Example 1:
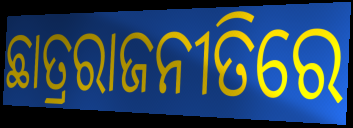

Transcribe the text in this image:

ଛାତ୍ରରାଜନୀତିରେ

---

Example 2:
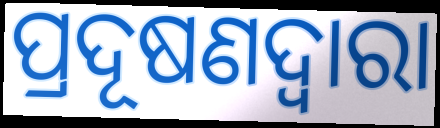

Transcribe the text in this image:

ପ୍ରଦୂଷଣଦ୍ବାରା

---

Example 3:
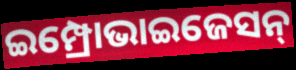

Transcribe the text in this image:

ଇମ୍ପ୍ରୋଭାଇଜେସନ୍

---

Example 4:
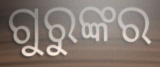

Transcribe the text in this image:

ଗୁରୁଙ୍କର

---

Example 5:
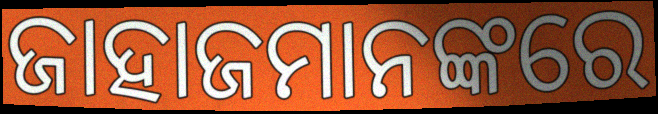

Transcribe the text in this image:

ଜାହାଜମାନଙ୍କରେ